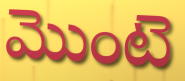
మొంటె